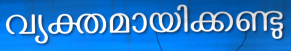
വ്യക്തമായിക്കണ്ടു